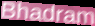
Bhadram